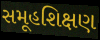
સમૂહશિક્ષણ